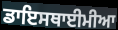
ਡਾਇਸਥਾਈਮੀਆ